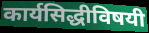
कार्यसिद्धीविषयी